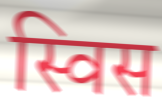
स्विस